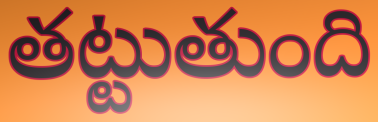
తట్టుతుంది